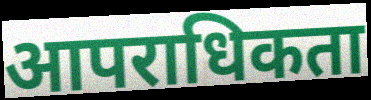
आपराधिकता